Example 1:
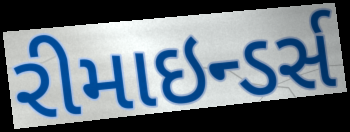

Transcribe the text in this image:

રીમાઇન્ડર્સ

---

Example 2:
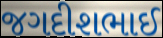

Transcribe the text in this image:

જગદીશભાઈ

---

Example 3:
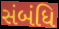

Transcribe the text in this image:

સંબંધિ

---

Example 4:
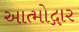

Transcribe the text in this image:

આત્મોદ્ગાર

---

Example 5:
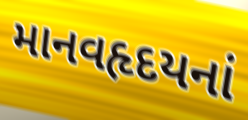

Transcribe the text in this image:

માનવહૃદયનાં